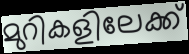
മുറികളിലേക്ക്